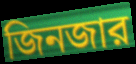
জিনজার